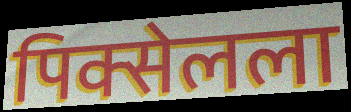
पिक्सेलला